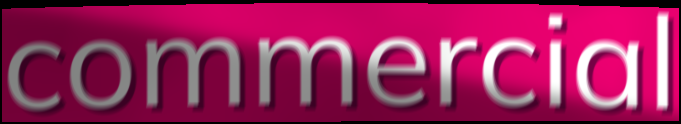
commercial